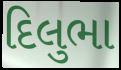
દિલુભા